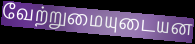
வேற்றுமையுடையன